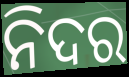
ନିଦର